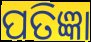
ପତିଜ୍ଞା